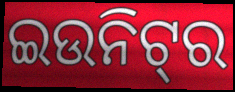
ଇଉନିଟ୍‍ର